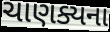
ચાણક્યના